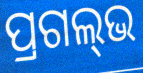
ପ୍ରଗଲ୍‌ଭ